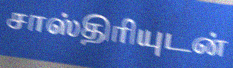
சாஸ்திரியுடன்